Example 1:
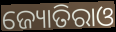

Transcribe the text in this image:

ଜ୍ୟୋତିରାଓ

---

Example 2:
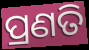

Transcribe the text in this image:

ପ୍ରଣତି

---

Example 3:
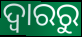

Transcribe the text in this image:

ଦ୍ଵାରରୁ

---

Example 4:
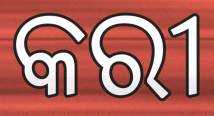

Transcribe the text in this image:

କରୀ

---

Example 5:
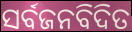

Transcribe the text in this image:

ସର୍ବଜନବିଦିତ